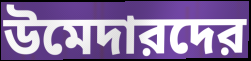
উমেদারদের